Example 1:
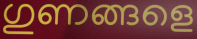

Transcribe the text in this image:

ഗുണങ്ങളെ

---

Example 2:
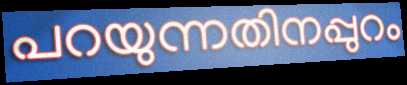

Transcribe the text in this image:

പറയുന്നതിനപ്പുറം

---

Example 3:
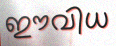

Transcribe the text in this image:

ഈവിധ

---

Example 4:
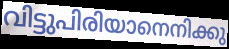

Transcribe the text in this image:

വിട്ടുപിരിയാനെനിക്കു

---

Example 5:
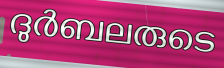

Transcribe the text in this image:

ദുർബലരുടെ